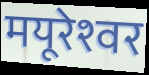
मयूरेश्वर